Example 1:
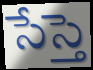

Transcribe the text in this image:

సేస్తె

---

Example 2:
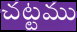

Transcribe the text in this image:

చట్టము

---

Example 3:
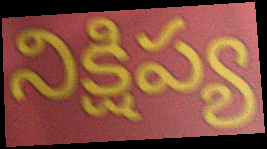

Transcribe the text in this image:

నిక్షిప్య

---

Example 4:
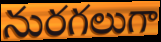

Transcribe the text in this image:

నురగలుగా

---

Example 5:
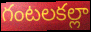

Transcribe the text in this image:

గంటలకల్లా